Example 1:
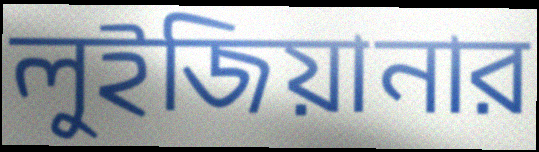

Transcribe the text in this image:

লুইজিয়ানার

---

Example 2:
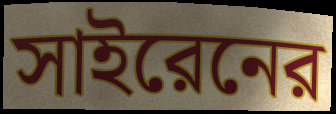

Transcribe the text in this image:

সাইরেনের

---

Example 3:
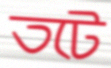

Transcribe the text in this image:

তটে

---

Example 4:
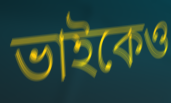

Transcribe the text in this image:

ভাইকেও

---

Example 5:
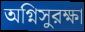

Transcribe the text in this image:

অগ্নিসুরক্ষা